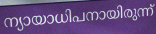
ന്യായാധിപനായിരുന്ന്